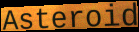
Asteroid